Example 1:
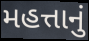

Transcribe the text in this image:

મહત્તાનું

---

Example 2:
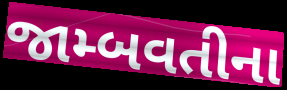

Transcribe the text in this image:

જામ્બવતીના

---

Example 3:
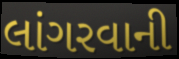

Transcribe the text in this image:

લાંગરવાની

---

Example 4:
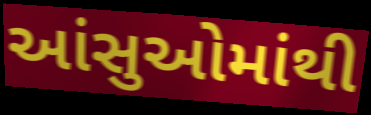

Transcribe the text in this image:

આંસુઓમાંથી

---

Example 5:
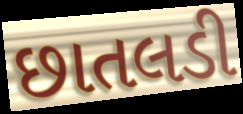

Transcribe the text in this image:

છાતલડી